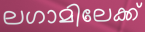
ലഗാമിലേക്ക്